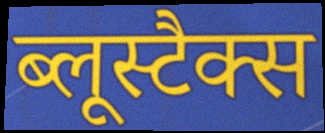
ब्लूस्टैक्स